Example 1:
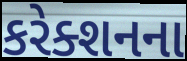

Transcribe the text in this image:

કરેક્શનના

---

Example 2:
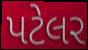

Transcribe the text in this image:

પટેલર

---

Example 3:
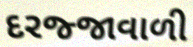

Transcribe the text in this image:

દરજ્જાવાળી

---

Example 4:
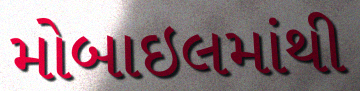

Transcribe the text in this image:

મોબાઇલમાંથી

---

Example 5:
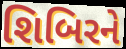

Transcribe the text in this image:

શિબિરને